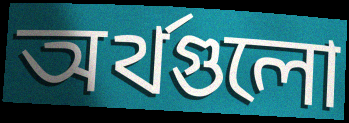
অর্থগুলো